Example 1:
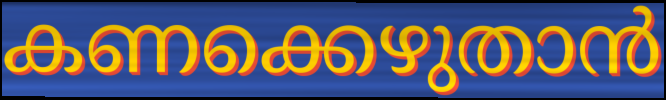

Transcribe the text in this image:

കണക്കെഴുതാൻ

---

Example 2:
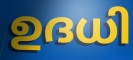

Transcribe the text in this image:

ഉദധി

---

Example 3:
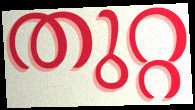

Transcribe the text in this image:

തുറ്റ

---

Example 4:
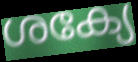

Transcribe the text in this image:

ശക്യേ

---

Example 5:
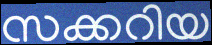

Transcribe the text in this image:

സക്കറിയ